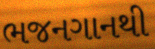
ભજનગાનથી